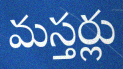
మస్తర్లు